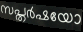
സപ്തർഷയോ